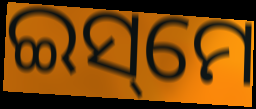
ଇସ୍‌ମେ